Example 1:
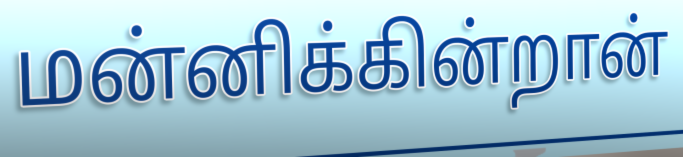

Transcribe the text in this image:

மன்னிக்கின்றான்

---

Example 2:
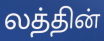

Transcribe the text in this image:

லத்தின்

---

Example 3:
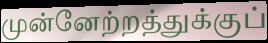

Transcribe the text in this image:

முன்னேற்றத்துக்குப்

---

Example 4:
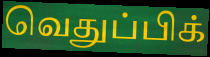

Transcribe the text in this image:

வெதுப்பிக்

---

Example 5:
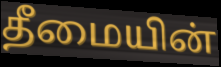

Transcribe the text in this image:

தீமையின்